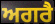
ਅਗਰੈ